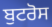
ਬੁਟਰੋਸ